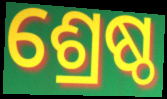
ଶ୍ରେଷ୍ଠ